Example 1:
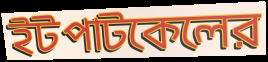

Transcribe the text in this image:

ইটপাটকেলের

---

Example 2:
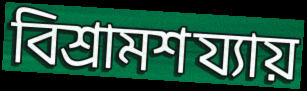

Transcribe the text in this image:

বিশ্রামশয্যায়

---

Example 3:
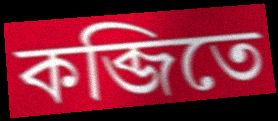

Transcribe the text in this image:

কব্জিতে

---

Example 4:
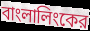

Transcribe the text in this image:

বাংলালিংকের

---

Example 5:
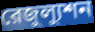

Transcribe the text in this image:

রেজুল্যুশন